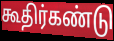
கூதிர்கண்டு